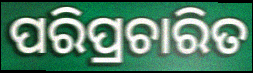
ପରିପ୍ରଚାରିତ